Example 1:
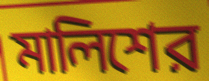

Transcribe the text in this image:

মালিশের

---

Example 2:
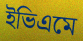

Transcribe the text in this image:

ইভিএমে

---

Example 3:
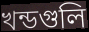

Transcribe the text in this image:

খন্ডগুলি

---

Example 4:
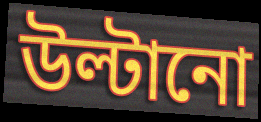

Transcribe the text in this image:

উল্টানো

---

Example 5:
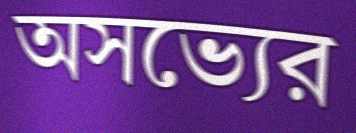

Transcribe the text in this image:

অসভ্যের